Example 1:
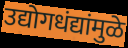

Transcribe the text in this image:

उद्योगधंद्यांमुळे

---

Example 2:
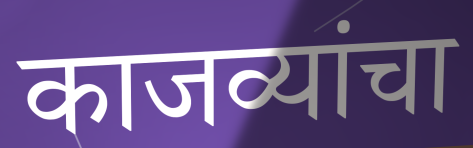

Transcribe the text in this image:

काजव्यांचा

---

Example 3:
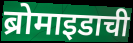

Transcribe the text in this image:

ब्रोमाइडाची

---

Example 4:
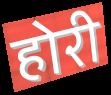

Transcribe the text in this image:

होरी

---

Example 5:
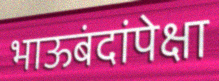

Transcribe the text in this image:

भाऊबंदांपेक्षा